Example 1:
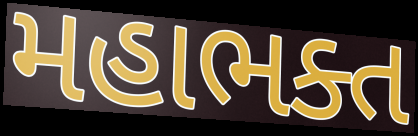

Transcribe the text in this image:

મહાભક્ત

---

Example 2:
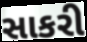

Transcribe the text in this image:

સાકરી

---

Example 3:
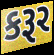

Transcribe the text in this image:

કરૂર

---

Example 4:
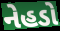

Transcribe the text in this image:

નેહડો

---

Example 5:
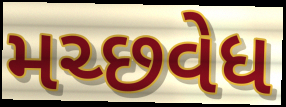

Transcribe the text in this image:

મચ્છવેધ